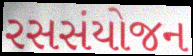
રસસંયોજન